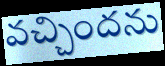
వచ్చిందను